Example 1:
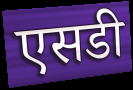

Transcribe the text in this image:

एसडी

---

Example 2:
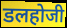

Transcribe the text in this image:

डलहोजी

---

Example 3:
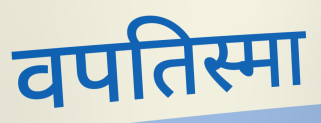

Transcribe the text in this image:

वपतिस्मा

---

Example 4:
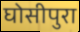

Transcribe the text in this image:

घोसीपुरा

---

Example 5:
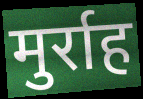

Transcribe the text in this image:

मुर्राह